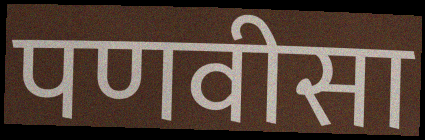
पणवीसा